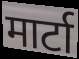
मार्टा